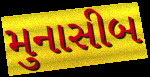
મુનાસીબ